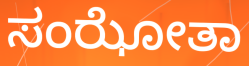
ಸಂಝೋತಾ